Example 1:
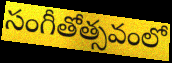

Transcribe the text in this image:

సంగీతోత్సవంలో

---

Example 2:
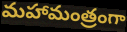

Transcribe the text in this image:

మహామంత్రంగా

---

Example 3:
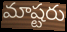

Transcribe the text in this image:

మాష్టరు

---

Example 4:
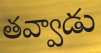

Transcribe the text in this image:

తవ్వాడు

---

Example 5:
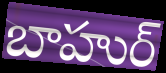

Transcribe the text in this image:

బాహుర్